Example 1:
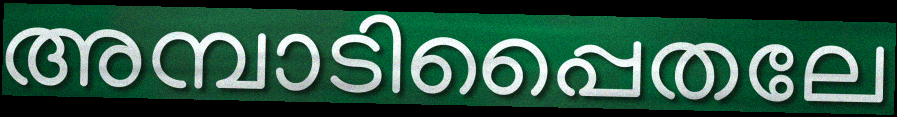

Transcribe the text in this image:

അമ്പാടിപ്പൈതലേ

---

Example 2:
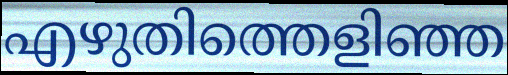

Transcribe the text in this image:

എഴുതിത്തെളിഞ്ഞ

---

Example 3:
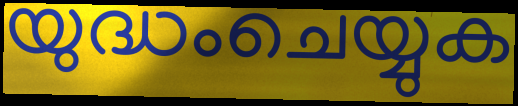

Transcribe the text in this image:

യുദ്ധംചെയ്യുക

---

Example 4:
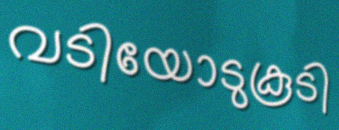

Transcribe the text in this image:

വടിയോടുകൂടി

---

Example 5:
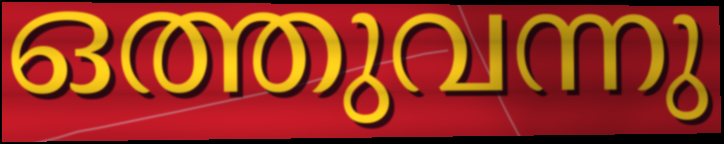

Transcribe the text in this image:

ഒത്തുവന്നു